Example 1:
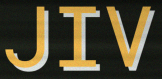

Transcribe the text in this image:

JIV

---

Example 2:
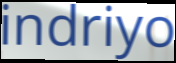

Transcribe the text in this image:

indriyo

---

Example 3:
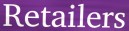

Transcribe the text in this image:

Retailers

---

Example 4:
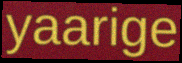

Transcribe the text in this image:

yaarige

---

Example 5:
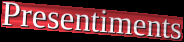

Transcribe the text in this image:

Presentiments